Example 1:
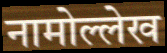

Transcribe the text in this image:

नामोल्लेख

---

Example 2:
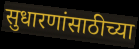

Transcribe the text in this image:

सुधारणांसाठीच्या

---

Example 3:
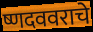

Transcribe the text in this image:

ष्णदववराचे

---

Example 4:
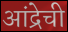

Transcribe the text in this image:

आंद्रेची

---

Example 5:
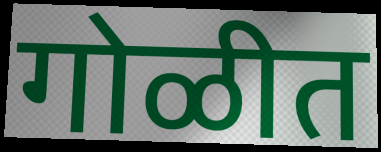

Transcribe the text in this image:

गोळीत